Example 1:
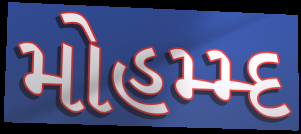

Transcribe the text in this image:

મોહમ્મ્દ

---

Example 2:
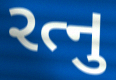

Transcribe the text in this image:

રત્નુ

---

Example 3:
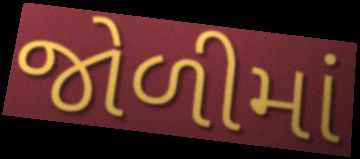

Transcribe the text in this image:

જોળીમાં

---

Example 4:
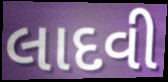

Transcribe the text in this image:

લાદવી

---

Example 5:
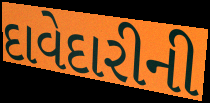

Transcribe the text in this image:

દાવેદારીની